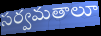
సర్వమతాలూ